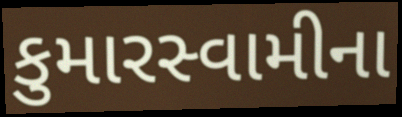
કુમારસ્વામીના